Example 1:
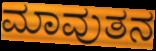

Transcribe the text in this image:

ಮಾವುತನ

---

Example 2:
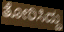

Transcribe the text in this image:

ತೋರಿಸಿದ್ದು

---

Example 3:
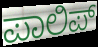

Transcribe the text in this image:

ಪಾಲಿಪ್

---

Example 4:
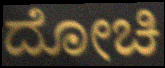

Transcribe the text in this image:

ದೋಚಿ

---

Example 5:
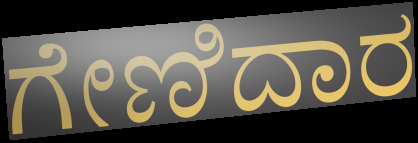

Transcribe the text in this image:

ಗೇಣಿದಾರ